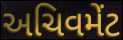
અચિવમેંટ